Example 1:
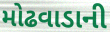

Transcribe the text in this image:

મોઢવાડાની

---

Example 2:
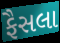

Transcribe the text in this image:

ફૈસલા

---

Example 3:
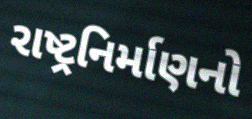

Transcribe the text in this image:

રાષ્ટ્રનિર્માણનો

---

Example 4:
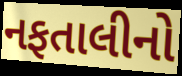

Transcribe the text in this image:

નફતાલીનો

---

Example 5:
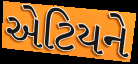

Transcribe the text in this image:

એટિયને